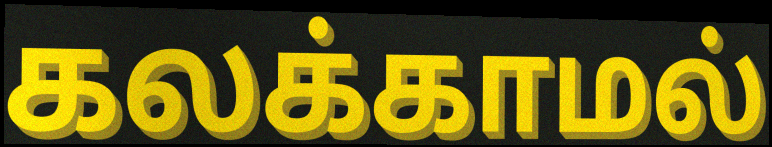
கலக்காமல்